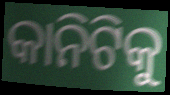
କାନିଟିକୁ